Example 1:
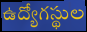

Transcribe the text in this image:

ఉద్యోగస్థుల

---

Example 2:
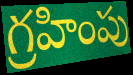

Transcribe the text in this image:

గ్రహింపు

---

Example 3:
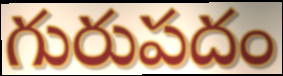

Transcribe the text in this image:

గురుపదం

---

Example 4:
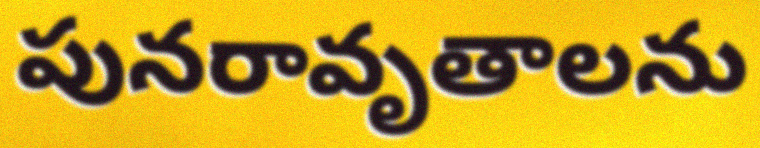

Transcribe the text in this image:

పునరావృతాలను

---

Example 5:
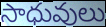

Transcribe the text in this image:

సాధువులు